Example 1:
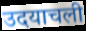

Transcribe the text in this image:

उदयाचली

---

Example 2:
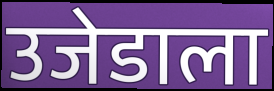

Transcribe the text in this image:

उजेडाला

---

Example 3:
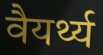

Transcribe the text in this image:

वैयर्थ्य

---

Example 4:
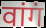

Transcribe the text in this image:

वांगं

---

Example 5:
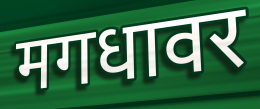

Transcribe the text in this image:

मगधावर